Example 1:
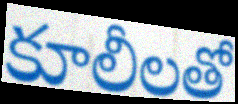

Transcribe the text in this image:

కూలీలతో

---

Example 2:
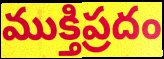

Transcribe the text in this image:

ముక్తిప్రదం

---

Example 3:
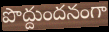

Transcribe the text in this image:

పొద్దుందనంగా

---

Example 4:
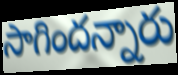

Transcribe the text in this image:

సాగిందన్నారు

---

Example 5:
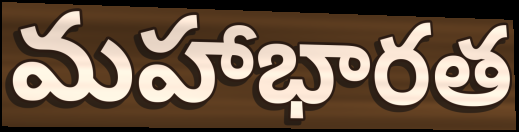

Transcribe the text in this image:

మహాభారత